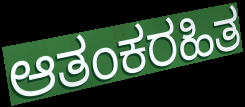
ಆತಂಕರಹಿತ